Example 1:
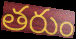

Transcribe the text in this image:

తరుం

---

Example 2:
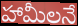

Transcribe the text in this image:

హామీలనే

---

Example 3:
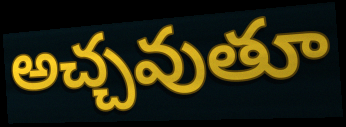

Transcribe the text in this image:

అచ్చవుతూ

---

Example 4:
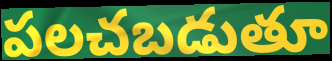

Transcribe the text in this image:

పలచబడుతూ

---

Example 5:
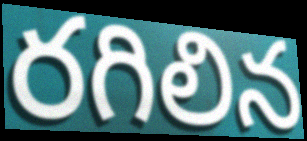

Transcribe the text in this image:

రగిలిన